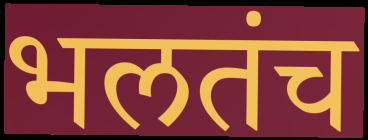
भलतंच